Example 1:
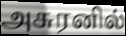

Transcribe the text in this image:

அசுரனில்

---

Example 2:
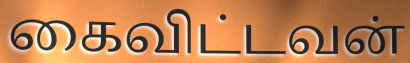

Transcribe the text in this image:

கைவிட்டவன்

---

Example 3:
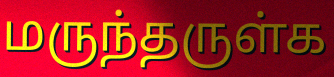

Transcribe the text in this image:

மருந்தருள்க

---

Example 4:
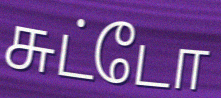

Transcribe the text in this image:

சுட்டோ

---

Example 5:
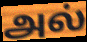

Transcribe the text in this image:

அல்